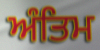
ਅੰਤਿਮ